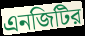
এনজিটির